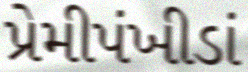
પ્રેમીપંખીડાં